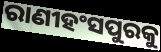
ରାଣୀହଂସପୁରକୁ